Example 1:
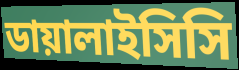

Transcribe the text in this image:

ডায়ালাইসিসি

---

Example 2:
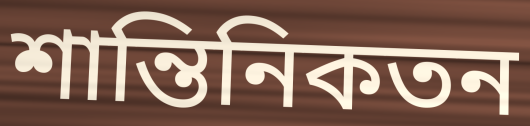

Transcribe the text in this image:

শান্তিনিকতন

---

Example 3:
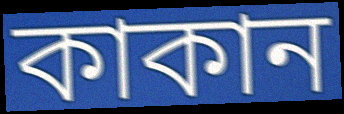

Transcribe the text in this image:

কাকান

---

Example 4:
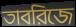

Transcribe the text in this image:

তাবরিজে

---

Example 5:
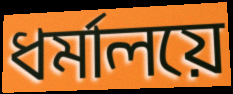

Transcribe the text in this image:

ধর্মালয়ে